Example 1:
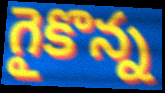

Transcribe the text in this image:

గైకొన్న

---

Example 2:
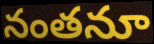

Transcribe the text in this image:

నంతనూ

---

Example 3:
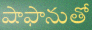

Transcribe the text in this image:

షాఫానుతో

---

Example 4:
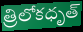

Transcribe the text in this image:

త్రిలోకధృత్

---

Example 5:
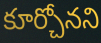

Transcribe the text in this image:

కూర్చోనని